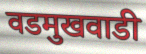
वडमुखवाडी